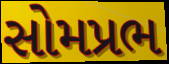
સોમપ્રભ